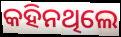
କହିନଥିଲେ